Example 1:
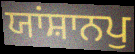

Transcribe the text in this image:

ਯਾਂਸ਼ਾਨਪੁ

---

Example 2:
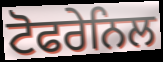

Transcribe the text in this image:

ਟੋਫਰੇਨਿਲ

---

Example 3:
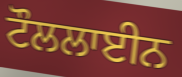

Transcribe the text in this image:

ਟੌਲਲਾਈਨ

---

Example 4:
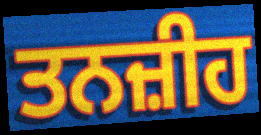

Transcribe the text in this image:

ਤਨਜ਼ੀਹ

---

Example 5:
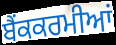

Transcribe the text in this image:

ਬੈਂਕਕਰਮੀਆਂ